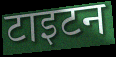
टाइटन